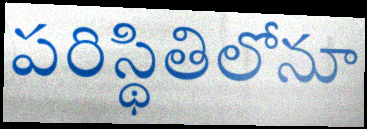
పరిస్థితిలోనూ